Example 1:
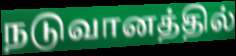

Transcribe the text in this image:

நடுவானத்தில்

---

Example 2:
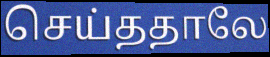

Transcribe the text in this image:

செய்ததாலே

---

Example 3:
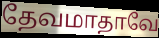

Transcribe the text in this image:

தேவமாதாவே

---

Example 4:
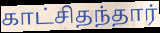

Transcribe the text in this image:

காட்சிதந்தார்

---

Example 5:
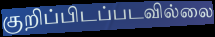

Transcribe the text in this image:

குறிப்பிடப்படவில்லை